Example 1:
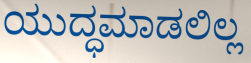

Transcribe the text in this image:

ಯುದ್ಧಮಾಡಲಿಲ್ಲ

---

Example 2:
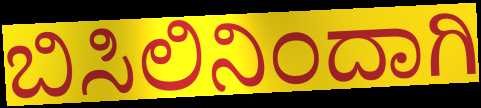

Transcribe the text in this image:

ಬಿಸಿಲಿನಿಂದಾಗಿ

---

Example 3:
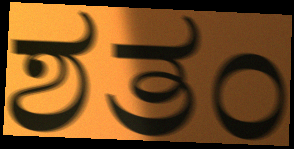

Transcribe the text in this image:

ಶತಂ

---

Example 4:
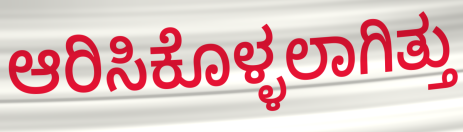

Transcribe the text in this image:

ಆರಿಸಿಕೊಳ್ಳಲಾಗಿತ್ತು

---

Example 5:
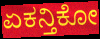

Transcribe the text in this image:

ಏಕನ್ತಿಕೋ